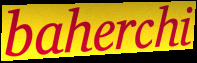
baherchi